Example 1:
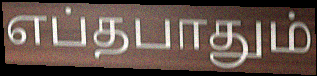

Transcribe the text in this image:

எப்தபாதும்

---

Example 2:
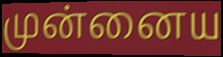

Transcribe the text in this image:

முன்னைய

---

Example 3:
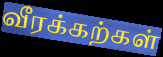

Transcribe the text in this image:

வீரக்கற்கள்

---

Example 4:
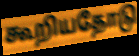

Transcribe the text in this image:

கூறியதோடு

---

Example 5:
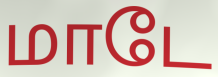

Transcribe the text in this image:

மாடே